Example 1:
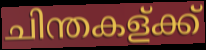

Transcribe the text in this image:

ചിന്തകള്ക്ക്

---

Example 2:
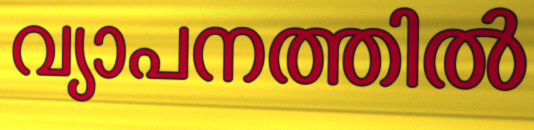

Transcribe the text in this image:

വ്യാപനത്തിൽ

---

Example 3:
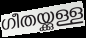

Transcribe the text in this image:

ഗീതയ്ക്കുള്ള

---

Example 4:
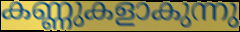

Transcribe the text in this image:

കണ്ണുകളാകുന്നു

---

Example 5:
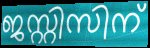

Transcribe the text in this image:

ജസ്റ്റിസിന്